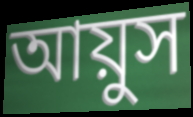
আয়ুস